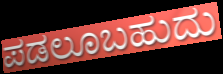
ಪಡಲೂಬಹುದು